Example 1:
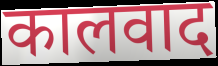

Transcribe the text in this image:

कालवाद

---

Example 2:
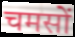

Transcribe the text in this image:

चमसों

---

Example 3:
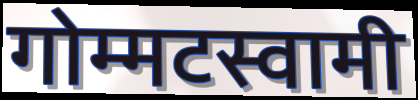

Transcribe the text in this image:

गोम्मटस्वामी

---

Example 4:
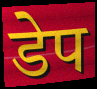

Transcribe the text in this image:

डेप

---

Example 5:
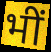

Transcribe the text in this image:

भीं